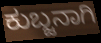
ಕುಬ್ಜನಾಗಿ